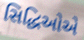
સિદ્ધિઓએ